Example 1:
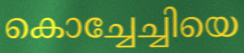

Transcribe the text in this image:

കൊച്ചേച്ചിയെ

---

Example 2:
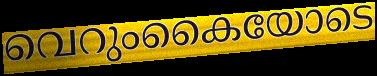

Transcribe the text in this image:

വെറുംകൈയോടെ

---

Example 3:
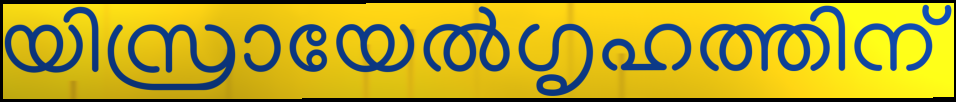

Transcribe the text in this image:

യിസ്രായേൽഗൃഹത്തിന്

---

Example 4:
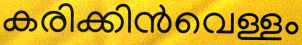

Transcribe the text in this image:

കരിക്കിൻവെള്ളം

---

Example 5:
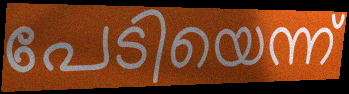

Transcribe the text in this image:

പേടിയെന്ന്